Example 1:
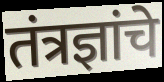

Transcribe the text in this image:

तंत्रज्ञांचे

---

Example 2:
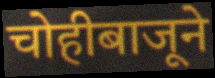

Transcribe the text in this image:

चोहीबाजूने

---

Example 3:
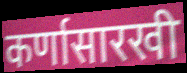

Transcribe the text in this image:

कर्णासारखी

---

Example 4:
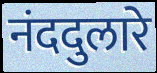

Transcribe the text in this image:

नंददुलारे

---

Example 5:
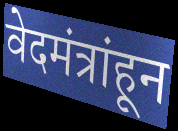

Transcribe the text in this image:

वेदमंत्रांहून